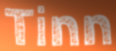
Tinn